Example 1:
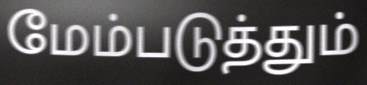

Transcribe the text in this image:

மேம்படுத்தும்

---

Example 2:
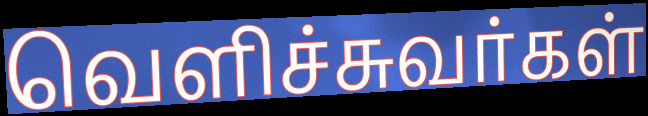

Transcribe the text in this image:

வெளிச்சுவர்கள்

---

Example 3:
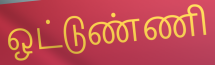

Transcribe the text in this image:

ஒட்டுண்ணி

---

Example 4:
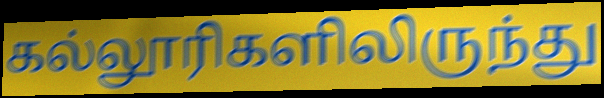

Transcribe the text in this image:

கல்லூரிகளிலிருந்து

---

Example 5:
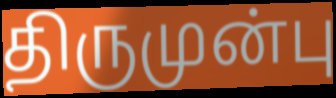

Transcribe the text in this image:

திருமுன்பு